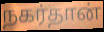
நகர்தான்